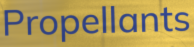
Propellants